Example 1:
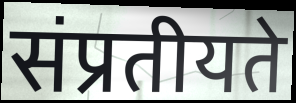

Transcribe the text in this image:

संप्रतीयते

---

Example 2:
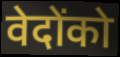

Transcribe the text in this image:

वेदोंको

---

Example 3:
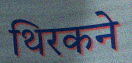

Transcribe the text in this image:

थिरकने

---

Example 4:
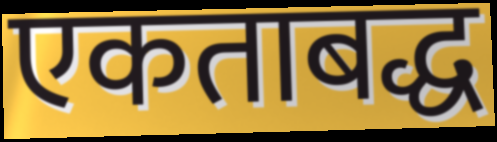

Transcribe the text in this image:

एकताबद्ध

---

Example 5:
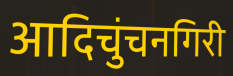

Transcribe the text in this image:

आदिचुंचनगिरी